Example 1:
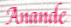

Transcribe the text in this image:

Anande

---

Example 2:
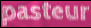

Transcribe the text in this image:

pasteur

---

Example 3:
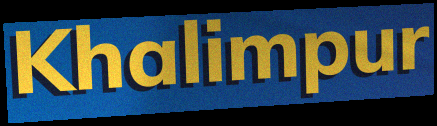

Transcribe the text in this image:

Khalimpur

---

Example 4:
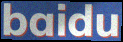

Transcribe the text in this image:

baidu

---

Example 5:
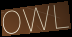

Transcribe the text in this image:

OWL